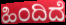
ಹಿಂದಿದೆ